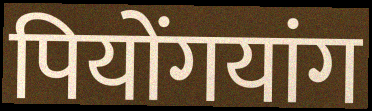
पियोंगयांग